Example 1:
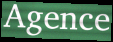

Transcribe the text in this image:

Agence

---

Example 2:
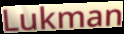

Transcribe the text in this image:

Lukman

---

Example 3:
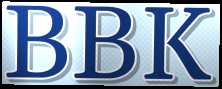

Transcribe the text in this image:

BBK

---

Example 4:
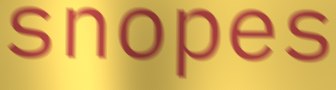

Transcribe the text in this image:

snopes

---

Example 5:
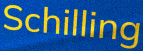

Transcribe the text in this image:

Schilling